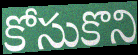
కోసుకొని